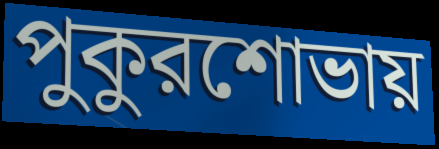
পুকুরশোভায়